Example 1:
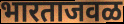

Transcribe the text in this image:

भारताजवळ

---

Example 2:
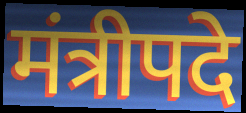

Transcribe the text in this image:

मंत्रीपदे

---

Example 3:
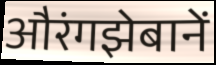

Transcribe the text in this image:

औरंगझेबानें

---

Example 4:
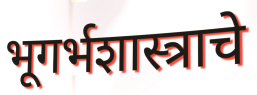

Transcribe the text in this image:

भूगर्भशास्त्राचे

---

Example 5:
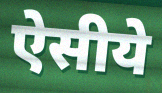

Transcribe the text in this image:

ऐसीये